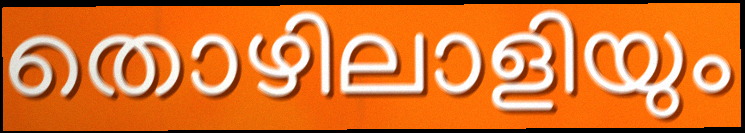
തൊഴിലാളിയും